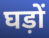
घड़ों